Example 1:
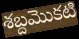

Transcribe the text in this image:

శబ్దమొకటి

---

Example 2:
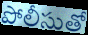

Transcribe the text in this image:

పోలీసుతో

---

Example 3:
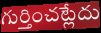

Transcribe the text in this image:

గుర్తించట్లేదు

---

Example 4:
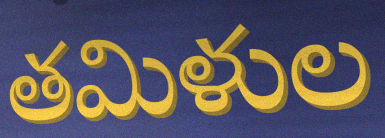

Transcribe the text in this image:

తమిళుల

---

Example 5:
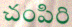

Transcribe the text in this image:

చంపిరి